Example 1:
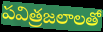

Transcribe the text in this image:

పవిత్రజలాలతో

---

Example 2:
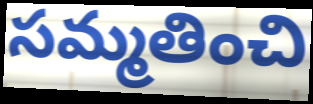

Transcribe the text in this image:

సమ్మతించి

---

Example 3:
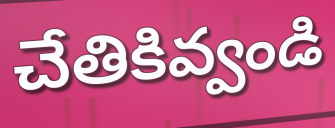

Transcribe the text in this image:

చేతికివ్వండి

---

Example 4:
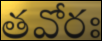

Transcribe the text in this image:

తవోరః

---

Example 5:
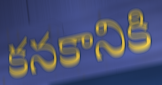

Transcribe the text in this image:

కనకానికి